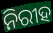
ନିରୀହ